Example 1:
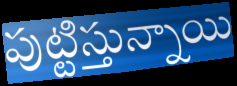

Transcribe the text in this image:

పుట్టిస్తున్నాయి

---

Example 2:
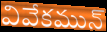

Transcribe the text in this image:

వివేకమున్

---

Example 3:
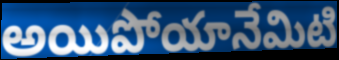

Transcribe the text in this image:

అయిపోయానేమిటి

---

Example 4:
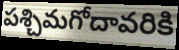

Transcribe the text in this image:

పశ్చిమగోదావరికి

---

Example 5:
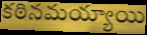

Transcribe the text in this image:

కఠినమయ్యాయి